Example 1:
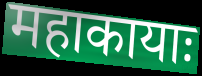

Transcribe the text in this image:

महाकायाः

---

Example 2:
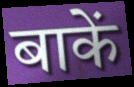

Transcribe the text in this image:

बाकें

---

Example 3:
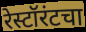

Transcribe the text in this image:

रेस्टॉरंटचा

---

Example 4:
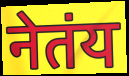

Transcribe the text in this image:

नेतंय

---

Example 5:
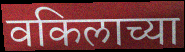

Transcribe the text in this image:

वकिलाच्या